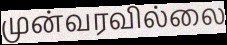
முன்வரவில்லை